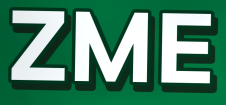
ZME